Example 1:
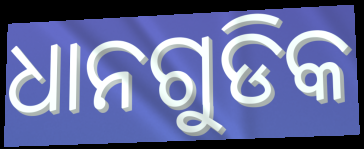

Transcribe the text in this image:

ଧାନଗୁଡିକ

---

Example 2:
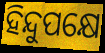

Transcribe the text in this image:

ହିନ୍ଦୁପକ୍ଷେ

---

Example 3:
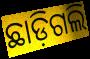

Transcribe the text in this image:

ଛାଡ଼ିଗଲି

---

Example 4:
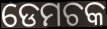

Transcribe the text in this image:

ଡେମଚକ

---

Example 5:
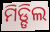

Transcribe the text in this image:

ମିଡ୍ଡିଲ